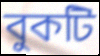
বুকটি